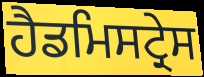
ਹੈਡਮਿਸਟ੍ਰੇਸ